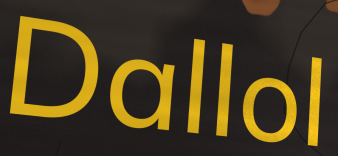
Dallol